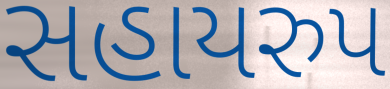
સહાયરુપ